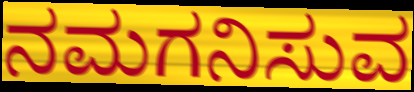
ನಮಗನಿಸುವ